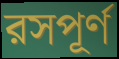
রসপূর্ণ